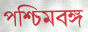
পশ্চিমবঙ্গ